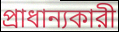
প্রাধান্যকারী